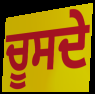
ਚੂਸਦੇ